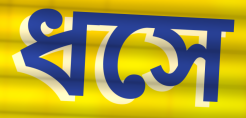
ধসে